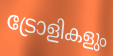
ട്രോളികളും